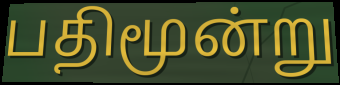
பதிமூன்று